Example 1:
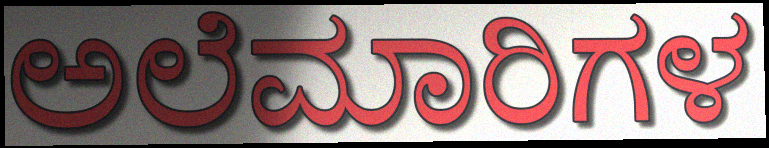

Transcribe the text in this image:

ಅಲೆಮಾರಿಗಳ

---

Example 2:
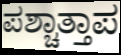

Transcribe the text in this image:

ಪಶ್ಚಾತ್ತಾಪ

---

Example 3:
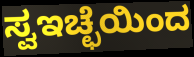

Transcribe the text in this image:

ಸ್ವಇಚ್ಛೆಯಿಂದ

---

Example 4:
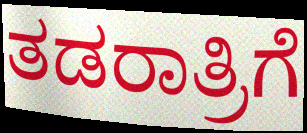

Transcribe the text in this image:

ತಡರಾತ್ರಿಗೆ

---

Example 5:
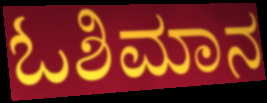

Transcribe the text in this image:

ಓಶಿಮಾನ